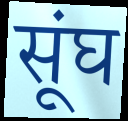
सूंघ